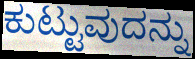
ಕುಟ್ಟುವುದನ್ನು